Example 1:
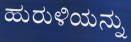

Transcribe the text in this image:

ಹುರುಳಿಯನ್ನು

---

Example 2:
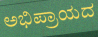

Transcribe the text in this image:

ಅಭಿಪ್ರಾಯದ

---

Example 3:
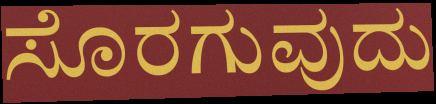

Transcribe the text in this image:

ಸೊರಗುವುದು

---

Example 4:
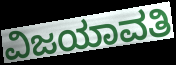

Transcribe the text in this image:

ವಿಜಯಾವತಿ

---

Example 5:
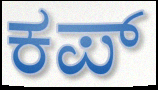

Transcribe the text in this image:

ಕಪ್